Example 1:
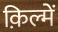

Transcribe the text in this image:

क़िल्में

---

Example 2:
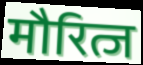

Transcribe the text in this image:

मौरित्ज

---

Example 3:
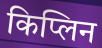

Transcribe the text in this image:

किप्लिन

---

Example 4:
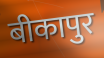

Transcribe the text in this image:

बीकापुर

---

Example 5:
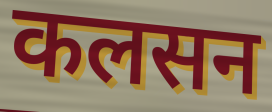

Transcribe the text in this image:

कलसन